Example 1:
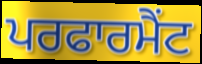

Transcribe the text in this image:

ਪਰਫਾਰਮੈਂਟ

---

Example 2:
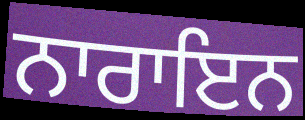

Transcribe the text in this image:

ਨਾਰਾਇਨ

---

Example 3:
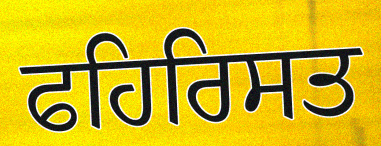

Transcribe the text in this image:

ਫਹਿਰਿਸਤ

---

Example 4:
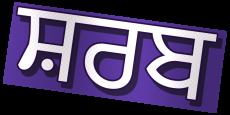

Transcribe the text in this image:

ਸ਼ਰਬ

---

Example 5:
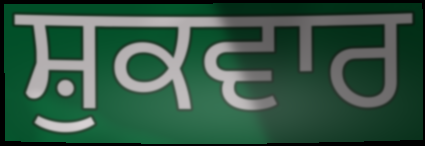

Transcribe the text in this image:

ਸ਼ੁਕਵਾਰ